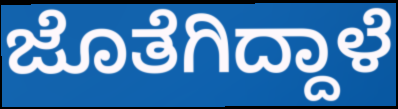
ಜೊತೆಗಿದ್ದಾಳೆ